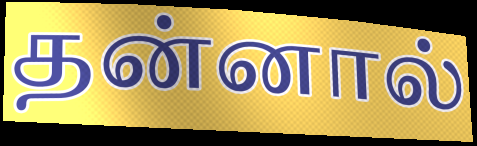
தன்னால்